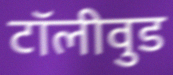
टॉलीवुड